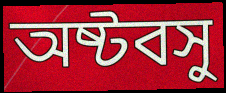
অষ্টবসু